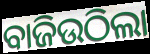
ବାଜିଉଠିଲା